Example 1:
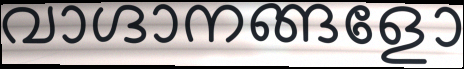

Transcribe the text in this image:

വാഗ്ദാനങ്ങളോ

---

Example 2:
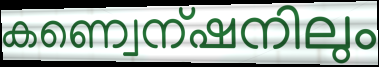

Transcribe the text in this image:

കണ്വെന്ഷനിലും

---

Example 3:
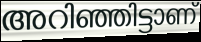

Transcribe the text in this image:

അറിഞ്ഞിട്ടാണ്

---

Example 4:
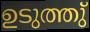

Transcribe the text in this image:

ഉടുത്തു്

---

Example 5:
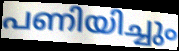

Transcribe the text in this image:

പണിയിച്ചും